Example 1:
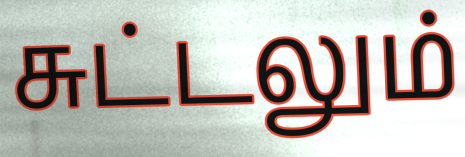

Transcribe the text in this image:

சுட்டலும்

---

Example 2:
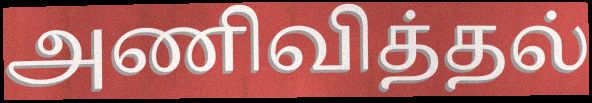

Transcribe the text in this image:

அணிவித்தல்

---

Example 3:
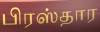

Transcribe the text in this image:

பிரஸ்தார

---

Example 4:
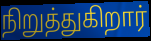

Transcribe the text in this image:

நிறுத்துகிறார்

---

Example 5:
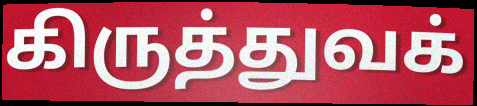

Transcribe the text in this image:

கிருத்துவக்